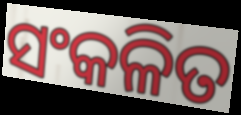
ସଂକଳିତ